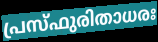
പ്രസ്ഫുരിതാധരഃ